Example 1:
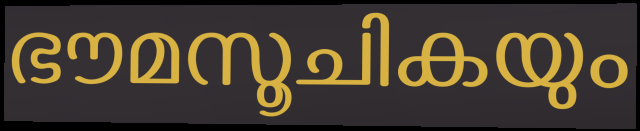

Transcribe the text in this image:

ഭൗമസൂചികയും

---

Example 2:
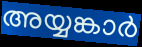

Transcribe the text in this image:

അയ്യങ്കാർ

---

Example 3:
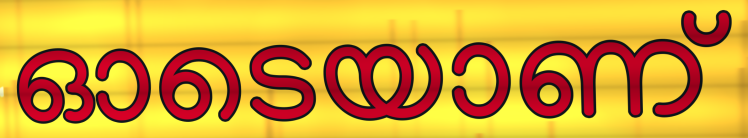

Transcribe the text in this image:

ഓടെയാണ്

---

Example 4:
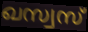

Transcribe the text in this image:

ഖസ്വസ്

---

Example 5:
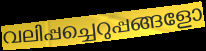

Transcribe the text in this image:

വലിപ്പച്ചെറുപ്പങ്ങളോ